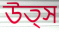
উত্স